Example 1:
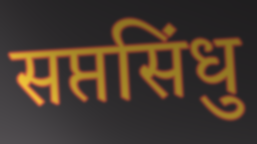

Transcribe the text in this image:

सप्तसिंधु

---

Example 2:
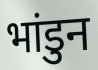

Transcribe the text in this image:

भांडुन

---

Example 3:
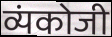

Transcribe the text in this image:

व्यंकोजी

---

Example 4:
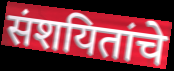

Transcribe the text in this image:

संशयितांचे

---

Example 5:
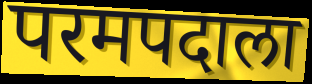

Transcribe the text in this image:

परमपदाला